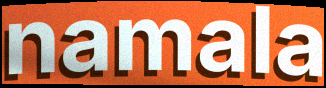
namala